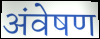
अंवेषण